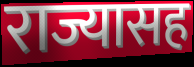
राज्यासह